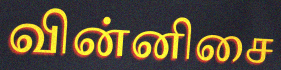
வின்னிசை